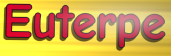
Euterpe